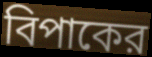
বিপাকের